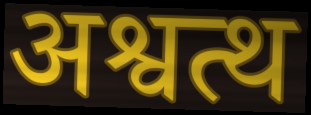
अश्वत्थ